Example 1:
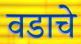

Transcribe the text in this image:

वडाचे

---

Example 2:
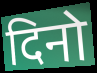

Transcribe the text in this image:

दिनो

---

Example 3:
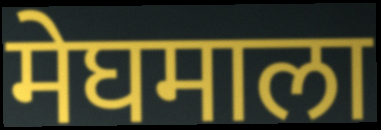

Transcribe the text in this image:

मेघमाला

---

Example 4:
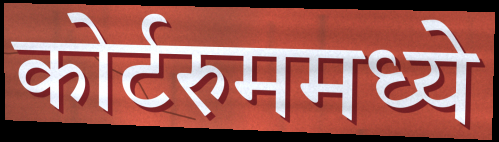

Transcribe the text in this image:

कोर्टरुममध्ये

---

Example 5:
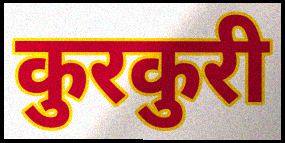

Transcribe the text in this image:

कुरकुरी